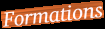
Formations